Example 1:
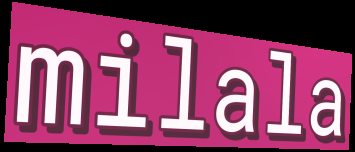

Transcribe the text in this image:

milala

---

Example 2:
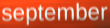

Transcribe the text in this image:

september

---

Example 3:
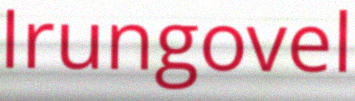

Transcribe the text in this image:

Irungovel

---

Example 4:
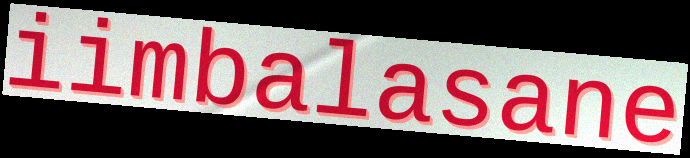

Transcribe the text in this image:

iimbalasane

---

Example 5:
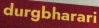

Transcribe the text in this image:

durgbharari